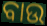
ବାଉ